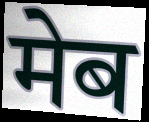
मेब